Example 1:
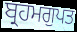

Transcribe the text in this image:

ਬ੍ਰਹਮਗੁਪਤ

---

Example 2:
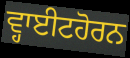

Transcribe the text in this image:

ਵ੍ਹਾਈਟਹੋਰਨ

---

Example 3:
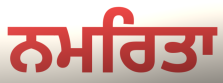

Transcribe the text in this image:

ਨਮਰਿਤਾ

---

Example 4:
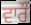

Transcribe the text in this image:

ਵਾਰੌਂ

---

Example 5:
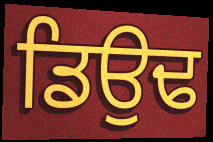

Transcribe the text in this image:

ਡਿਉਢ